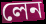
লেন